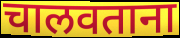
चालवताना